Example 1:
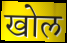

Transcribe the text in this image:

खोल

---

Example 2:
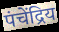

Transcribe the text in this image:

पंचेंद्रिय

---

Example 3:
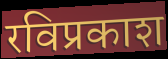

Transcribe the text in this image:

रविप्रकाश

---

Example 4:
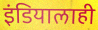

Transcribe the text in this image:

इंडियालाही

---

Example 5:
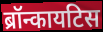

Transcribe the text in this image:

ब्रॉन्कायटिस